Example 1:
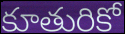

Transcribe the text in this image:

కూతురికో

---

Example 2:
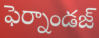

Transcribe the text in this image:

ఫెర్నాండజ్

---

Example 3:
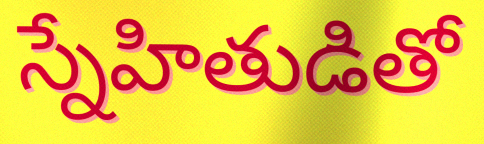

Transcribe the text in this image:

స్నేహితుడితో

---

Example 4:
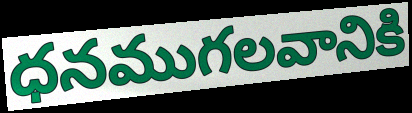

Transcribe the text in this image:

ధనముగలవానికి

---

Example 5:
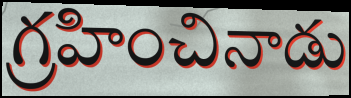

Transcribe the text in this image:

గ్రహించినాడు